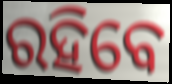
ରହିବେ